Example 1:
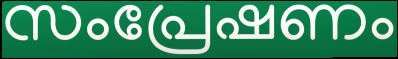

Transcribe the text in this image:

സംപ്രേഷണം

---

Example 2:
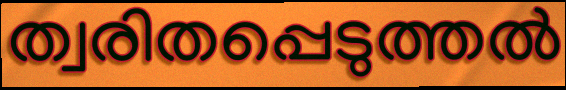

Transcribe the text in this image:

ത്വരിതപ്പെടുത്തൽ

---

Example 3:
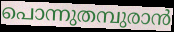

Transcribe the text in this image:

പൊന്നുതമ്പുരാൻ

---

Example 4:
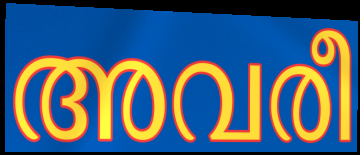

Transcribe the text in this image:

അവരീ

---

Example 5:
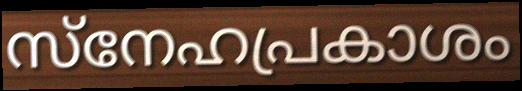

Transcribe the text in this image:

സ്നേഹപ്രകാശം